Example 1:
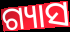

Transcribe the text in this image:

ଗ୍ୟାସ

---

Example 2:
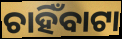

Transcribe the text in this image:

ଚାହିଁବାଟା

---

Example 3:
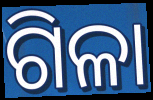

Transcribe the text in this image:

ଗିଳା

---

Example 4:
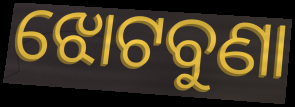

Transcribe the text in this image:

ଝୋଟବୁଣା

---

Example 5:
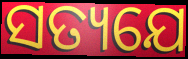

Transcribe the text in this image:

ସତ୍ୟଯେ